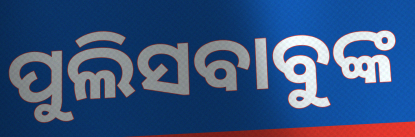
ପୁଲିସବାବୁଙ୍କ